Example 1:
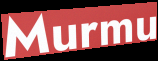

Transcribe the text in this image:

Murmu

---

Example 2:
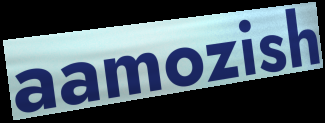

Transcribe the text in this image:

aamozish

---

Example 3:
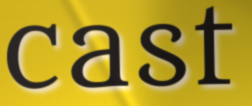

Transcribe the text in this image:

cast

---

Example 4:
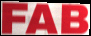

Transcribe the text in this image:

FAB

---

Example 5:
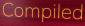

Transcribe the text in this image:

Compiled